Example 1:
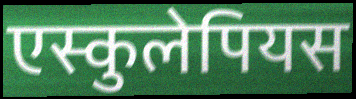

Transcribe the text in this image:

एस्कुलेपियस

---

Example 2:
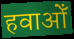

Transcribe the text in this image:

हवाओँ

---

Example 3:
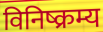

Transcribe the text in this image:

विनिष्क्रम्य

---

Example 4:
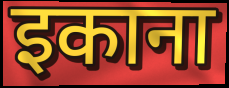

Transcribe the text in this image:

इकाना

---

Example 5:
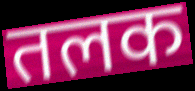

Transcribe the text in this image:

तलक